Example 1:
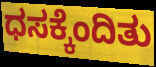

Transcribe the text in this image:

ಧಸಕ್ಕೆಂದಿತು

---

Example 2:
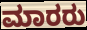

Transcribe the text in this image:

ಮಾರರು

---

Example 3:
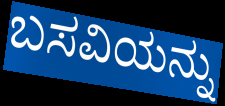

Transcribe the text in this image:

ಬಸವಿಯನ್ನು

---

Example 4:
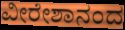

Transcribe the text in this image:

ವೀರೇಶಾನಂದ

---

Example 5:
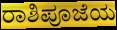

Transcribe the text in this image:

ರಾಶಿಪೂಜೆಯ